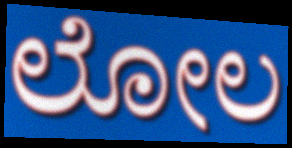
ಲೋಲ